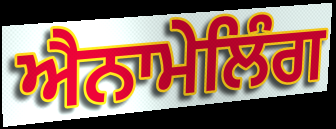
ਐਨਾਮੇਲਿੰਗ